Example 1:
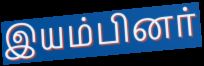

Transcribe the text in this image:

இயம்பினர்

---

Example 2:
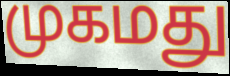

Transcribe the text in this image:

முகமது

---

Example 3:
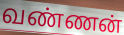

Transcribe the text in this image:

வண்ணன்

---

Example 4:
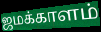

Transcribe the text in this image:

ஜமக்காளம்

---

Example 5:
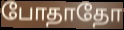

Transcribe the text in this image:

போதாதோ